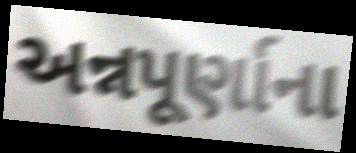
અન્નપૂર્ણાના